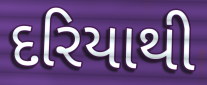
દરિયાથી